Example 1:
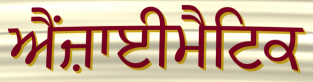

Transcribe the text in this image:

ਐਂਜ਼ਾਈਮੈਟਿਕ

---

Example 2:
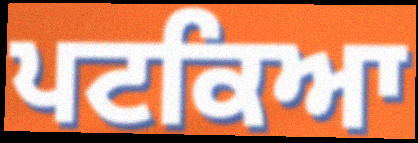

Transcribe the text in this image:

ਪਟਕਿਆ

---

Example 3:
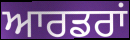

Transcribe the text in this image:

ਆਰਡਰਾਂ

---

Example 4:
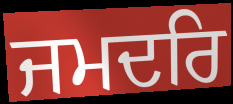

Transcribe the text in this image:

ਜਮਦਰਿ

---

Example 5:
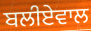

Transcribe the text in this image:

ਬਲੀਏਵਾਲ